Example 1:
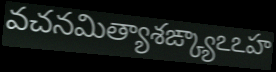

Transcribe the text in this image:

వచనమిత్యాశఙ్క్యాఽఽహ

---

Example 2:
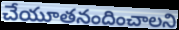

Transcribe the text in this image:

చేయూతనందించాలని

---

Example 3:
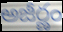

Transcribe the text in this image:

అజీర్ణం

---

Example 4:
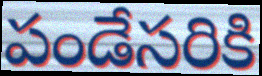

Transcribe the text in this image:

పండేసరికి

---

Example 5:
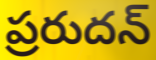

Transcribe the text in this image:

ప్రరుదన్